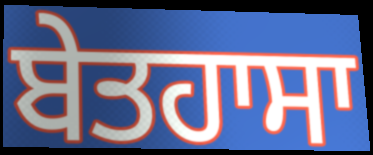
ਬੇਤਹਾਸਾ